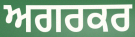
ਅਗਰਕਰ